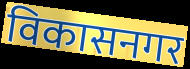
विकासनगर